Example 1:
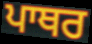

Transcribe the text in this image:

ਪਾਥਰ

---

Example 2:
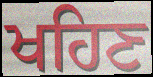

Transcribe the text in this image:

ਖਹਿਣ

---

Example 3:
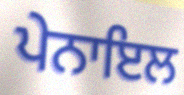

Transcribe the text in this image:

ਪੇਨਾਇਲ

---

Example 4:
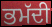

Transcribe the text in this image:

ਭਮੱਦੀ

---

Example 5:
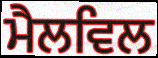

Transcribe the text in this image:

ਮੈਲਵਿਲ